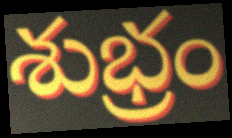
శుభ్రం